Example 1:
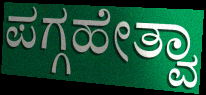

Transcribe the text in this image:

ಪಗ್ಗಹೇತ್ವಾ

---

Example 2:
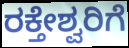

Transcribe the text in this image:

ರಕ್ತೇಶ್ವರಿಗೆ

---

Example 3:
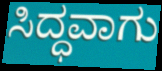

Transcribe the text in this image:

ಸಿದ್ಧವಾಗು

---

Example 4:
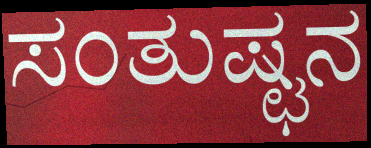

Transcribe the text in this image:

ಸಂತುಷ್ಟನ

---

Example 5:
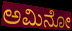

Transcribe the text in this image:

ಅಮಿನೋ